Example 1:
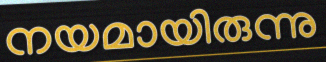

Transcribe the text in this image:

നയമായിരുന്നു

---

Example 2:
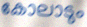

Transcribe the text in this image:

കോലാടും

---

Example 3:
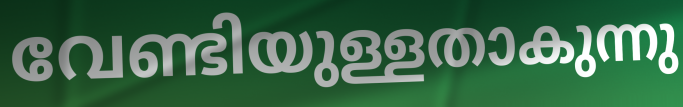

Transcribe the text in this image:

വേണ്ടിയുള്ളതാകുന്നു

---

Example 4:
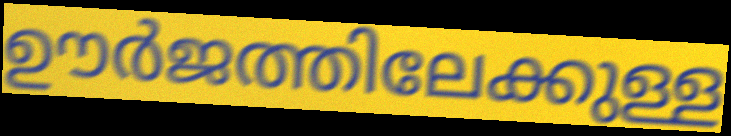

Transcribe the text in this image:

ഊർജത്തിലേക്കുള്ള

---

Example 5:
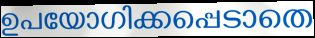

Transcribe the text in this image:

ഉപയോഗിക്കപ്പെടാതെ